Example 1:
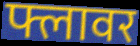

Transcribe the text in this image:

फ्लावर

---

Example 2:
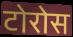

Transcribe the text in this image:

टोरोस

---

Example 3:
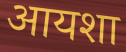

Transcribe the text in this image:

आयशा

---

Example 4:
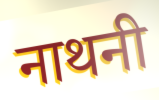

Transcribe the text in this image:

नाथनी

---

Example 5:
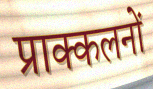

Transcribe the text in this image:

प्राक्कलनों